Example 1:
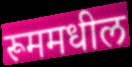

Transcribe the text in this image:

रूममधील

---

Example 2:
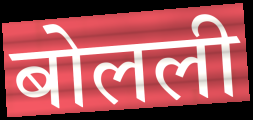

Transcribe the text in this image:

बोलली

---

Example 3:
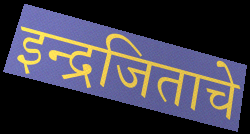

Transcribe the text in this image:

इन्द्रजिताचे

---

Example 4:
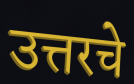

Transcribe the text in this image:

उत्तरचे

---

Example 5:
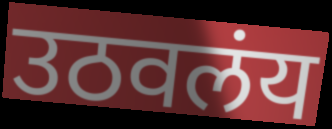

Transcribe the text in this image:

उठवलंय